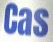
Cas